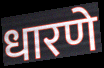
धारणे